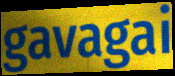
gavagai